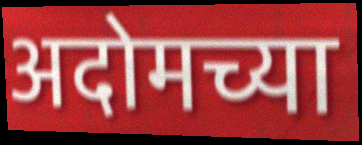
अदोमच्या